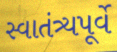
સ્વાતંત્ર્યપૂર્વે